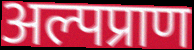
अल्पप्राण